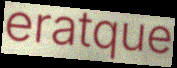
eratque